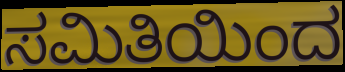
ಸಮಿತಿಯಿಂದ